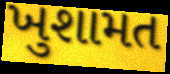
ખુશામત